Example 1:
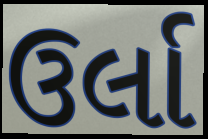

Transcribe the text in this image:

ઉર્લા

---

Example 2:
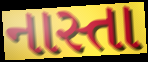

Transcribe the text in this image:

નાસ્તા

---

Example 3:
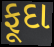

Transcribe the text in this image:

ફૂદા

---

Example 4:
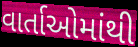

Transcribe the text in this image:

વાર્તાઓમાંથી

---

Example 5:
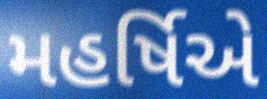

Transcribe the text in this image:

મહર્ષિએ